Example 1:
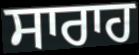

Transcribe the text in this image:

ਸਾਰਾਹ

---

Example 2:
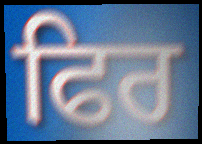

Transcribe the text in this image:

ਫਿਰ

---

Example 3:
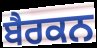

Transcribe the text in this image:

ਬੈਰਕਨ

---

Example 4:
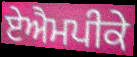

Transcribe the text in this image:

ਏਐਮਪੀਕੇ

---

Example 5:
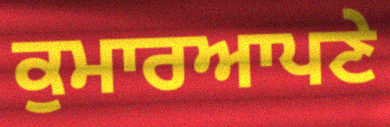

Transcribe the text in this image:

ਕੁਮਾਰਆਪਣੇ